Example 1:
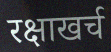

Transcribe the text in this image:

रक्षाखर्च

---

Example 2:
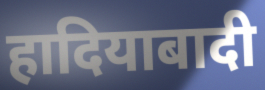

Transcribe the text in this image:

हादियाबादी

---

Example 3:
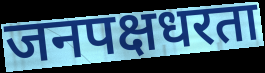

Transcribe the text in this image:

जनपक्षधरता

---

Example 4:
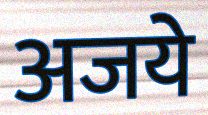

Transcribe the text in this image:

अजये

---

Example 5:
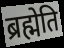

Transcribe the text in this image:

ब्रह्मेति